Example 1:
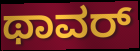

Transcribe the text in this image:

ಥಾವರ್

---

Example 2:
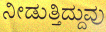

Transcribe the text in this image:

ನೀಡುತ್ತಿದ್ದುವು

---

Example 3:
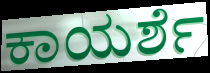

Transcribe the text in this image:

ಕಾಯರ್ಶೆ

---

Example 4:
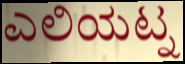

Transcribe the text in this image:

ಎಲಿಯಟ್ನ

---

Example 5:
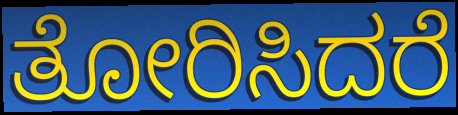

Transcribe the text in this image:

ತೋರಿಸಿದರೆ